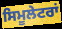
ਸਿਮੂਲੇਟਰਾਂ